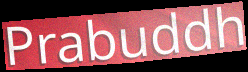
Prabuddh